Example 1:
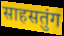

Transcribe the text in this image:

साहसतुंग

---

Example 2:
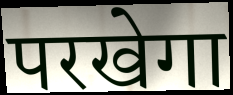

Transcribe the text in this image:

परखेगा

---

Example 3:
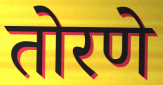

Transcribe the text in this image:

तोरणे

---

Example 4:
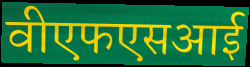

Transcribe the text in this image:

वीएफएसआई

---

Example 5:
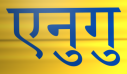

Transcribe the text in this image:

एनुगु